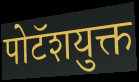
पोटॅशयुक्त